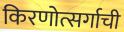
किरणोत्सर्गाची